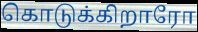
கொடுக்கிறாரோ